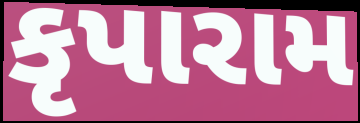
કૃપારામ